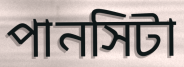
পানসিটা